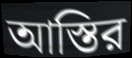
আস্তির